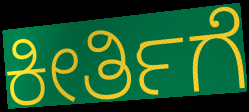
ಕೀರ್ತಿಗೆ